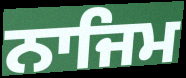
ਨਾਜਿਮ